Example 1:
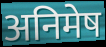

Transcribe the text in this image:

अनिमेष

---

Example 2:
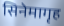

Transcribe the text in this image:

सिनेमागृह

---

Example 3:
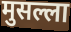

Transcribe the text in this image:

मुसल्ला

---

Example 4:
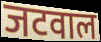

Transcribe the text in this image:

जटवाल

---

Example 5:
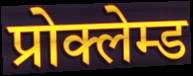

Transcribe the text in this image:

प्रोक्लेम्ड